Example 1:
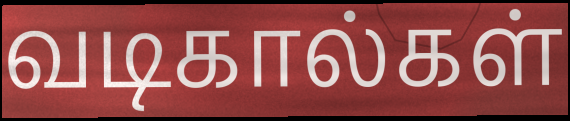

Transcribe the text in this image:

வடிகால்கள்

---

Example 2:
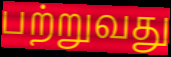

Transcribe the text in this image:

பற்றுவது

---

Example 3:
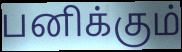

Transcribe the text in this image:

பனிக்கும்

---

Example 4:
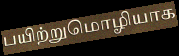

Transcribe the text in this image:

பயிற்றுமொழியாக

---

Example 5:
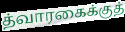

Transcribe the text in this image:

த்வாரகைக்குத்